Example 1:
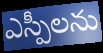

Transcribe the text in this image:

ఎస్పీలను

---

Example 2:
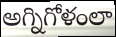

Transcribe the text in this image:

అగ్నిగోళంలా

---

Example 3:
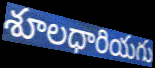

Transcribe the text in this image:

శూలధారియగు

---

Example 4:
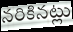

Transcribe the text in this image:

నరికినట్లు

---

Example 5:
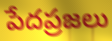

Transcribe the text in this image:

పేదప్రజలు